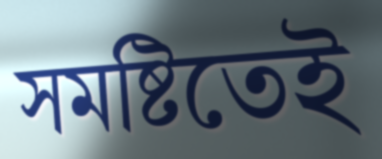
সমষ্টিতেই